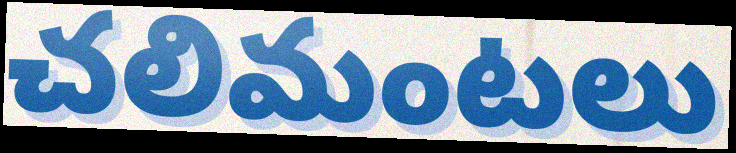
చలిమంటలు